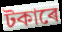
টকাৰে